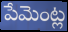
పేమెంట్ల